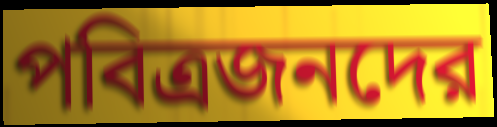
পবিত্রজনদের